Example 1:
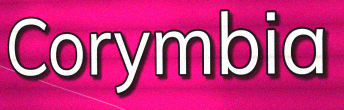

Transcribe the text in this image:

Corymbia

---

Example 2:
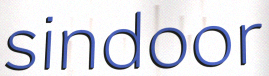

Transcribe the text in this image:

sindoor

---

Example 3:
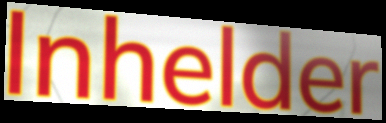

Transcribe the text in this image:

Inhelder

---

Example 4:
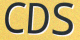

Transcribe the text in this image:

CDS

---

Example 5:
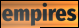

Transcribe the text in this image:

empires